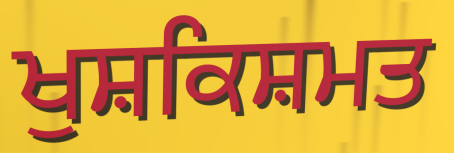
ਖੁਸ਼ਕਿਸ਼ਮਤ